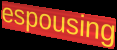
espousing